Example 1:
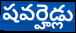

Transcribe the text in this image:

షవర్హెడ్లు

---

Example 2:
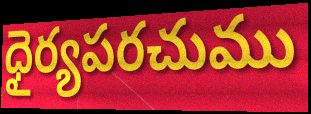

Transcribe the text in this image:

ధైర్యపరచుము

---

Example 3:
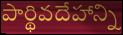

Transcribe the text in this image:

పార్థివదేహాన్ని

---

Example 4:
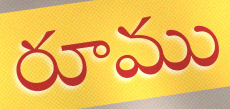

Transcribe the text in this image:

రూము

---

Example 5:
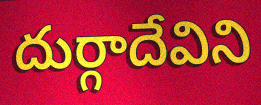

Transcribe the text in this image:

దుర్గాదేవిని